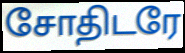
சோதிடரே